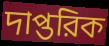
দাপ্তরিক